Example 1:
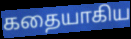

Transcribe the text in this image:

கதையாகிய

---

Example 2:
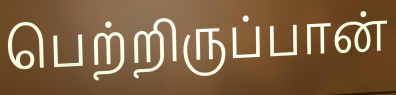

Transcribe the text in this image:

பெற்றிருப்பான்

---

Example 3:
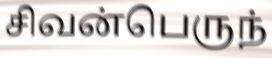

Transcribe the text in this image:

சிவன்பெருந்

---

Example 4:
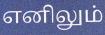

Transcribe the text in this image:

எனிலும்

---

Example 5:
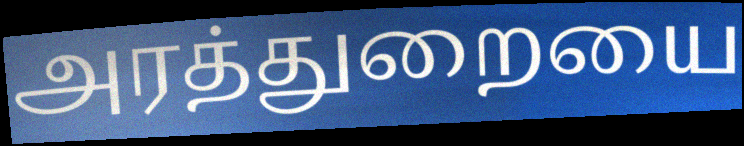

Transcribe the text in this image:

அரத்துறையை